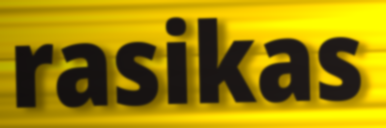
rasikas